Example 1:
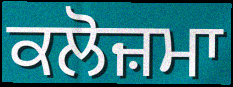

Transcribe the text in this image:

ਕਲੋਜ਼ਮਾ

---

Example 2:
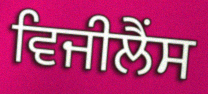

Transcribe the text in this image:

ਵਿਜੀਲੈਂਸ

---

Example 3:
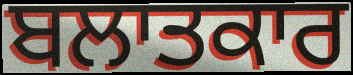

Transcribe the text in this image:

ਬਲਾਤਕਾਰ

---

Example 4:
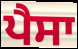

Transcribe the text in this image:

ਪੈਸਾ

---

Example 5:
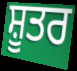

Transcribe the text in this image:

ਸ਼ੂਤਰ